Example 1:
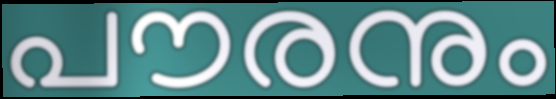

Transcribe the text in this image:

പൗരനും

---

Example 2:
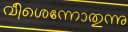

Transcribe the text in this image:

വീശെന്നോതുന്നു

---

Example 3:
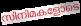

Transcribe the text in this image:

സിനിമകളോടെ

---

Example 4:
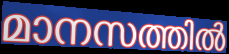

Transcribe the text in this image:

മാനസത്തിൽ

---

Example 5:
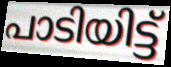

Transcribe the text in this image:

പാടിയിട്ട്